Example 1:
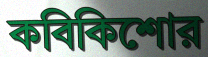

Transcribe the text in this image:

কবিকিশোর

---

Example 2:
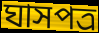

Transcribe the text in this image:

ঘাসপত্র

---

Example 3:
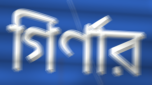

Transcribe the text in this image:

গির্ণার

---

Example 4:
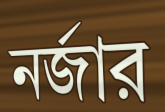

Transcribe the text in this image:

নর্জার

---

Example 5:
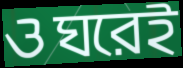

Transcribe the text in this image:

ওঘরেই